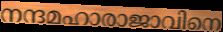
നന്ദമഹാരാജാവിനെ